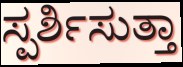
ಸ್ಪರ್ಶಿಸುತ್ತಾ